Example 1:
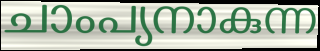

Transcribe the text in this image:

ചാംപ്യനാകുന്ന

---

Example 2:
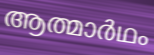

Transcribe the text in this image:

ആത്മാർഥം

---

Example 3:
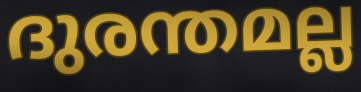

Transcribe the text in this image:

ദുരന്തമല്ല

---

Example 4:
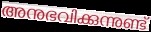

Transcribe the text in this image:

അനുഭവിക്കുന്നുണ്ട്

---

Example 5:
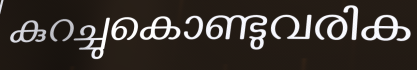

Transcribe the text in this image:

കുറച്ചുകൊണ്ടുവരിക